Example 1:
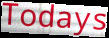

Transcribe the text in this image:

Todays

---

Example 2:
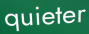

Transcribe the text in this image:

quieter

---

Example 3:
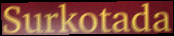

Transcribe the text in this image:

Surkotada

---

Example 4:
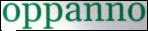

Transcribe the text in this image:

oppanno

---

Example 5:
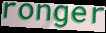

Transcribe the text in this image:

ronger